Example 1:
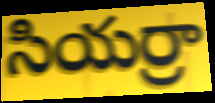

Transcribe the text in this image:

సియర్రా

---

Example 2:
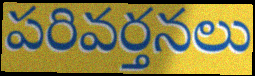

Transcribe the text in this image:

పరివర్తనలు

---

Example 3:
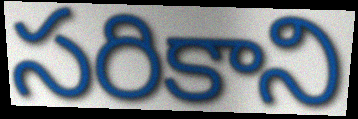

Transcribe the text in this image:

సరికాని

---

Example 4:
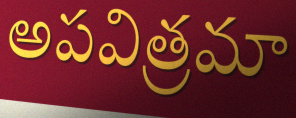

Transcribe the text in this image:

అపవిత్రమా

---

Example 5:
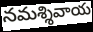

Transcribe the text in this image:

నమశ్శివాయ